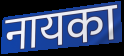
नायका